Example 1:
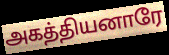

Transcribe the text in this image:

அகத்தியனாரே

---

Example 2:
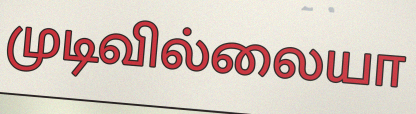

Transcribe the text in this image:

முடிவில்லையா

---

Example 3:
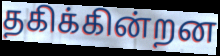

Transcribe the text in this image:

தகிக்கின்றன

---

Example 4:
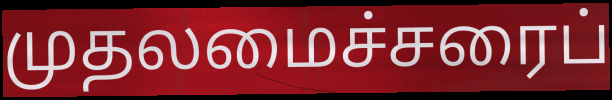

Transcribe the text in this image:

முதலமைச்சரைப்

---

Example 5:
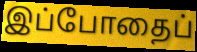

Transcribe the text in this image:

இப்போதைப்